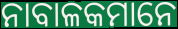
ନାବାଳକମାନେ